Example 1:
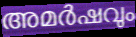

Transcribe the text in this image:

അമർഷവും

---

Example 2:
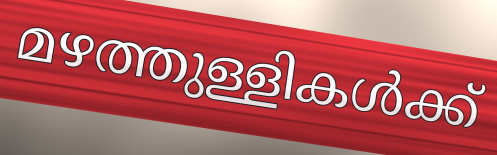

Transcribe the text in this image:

മഴത്തുള്ളികൾക്ക്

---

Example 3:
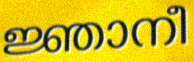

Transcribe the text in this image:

ജ്ഞാനീ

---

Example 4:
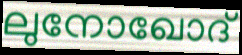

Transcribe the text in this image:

ലുനോഖോദ്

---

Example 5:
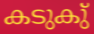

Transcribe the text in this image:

കടുകു്